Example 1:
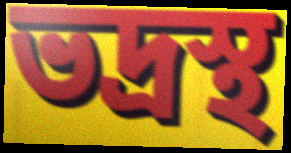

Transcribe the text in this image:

ভদ্রস্থ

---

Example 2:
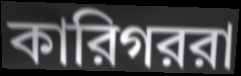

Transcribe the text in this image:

কারিগররা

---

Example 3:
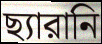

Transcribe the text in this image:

ছ্যারানি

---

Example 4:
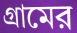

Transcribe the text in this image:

গ্রামের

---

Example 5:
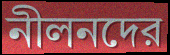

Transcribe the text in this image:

নীলনদের